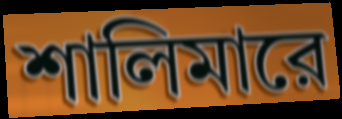
শালিমারে